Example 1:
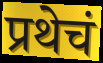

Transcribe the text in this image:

प्रथेचं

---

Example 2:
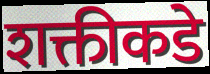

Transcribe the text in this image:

शक्तीकडे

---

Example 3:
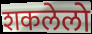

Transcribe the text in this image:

शकलेलो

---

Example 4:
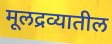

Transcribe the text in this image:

मूलद्रव्यातील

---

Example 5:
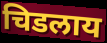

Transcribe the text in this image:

चिडलाय